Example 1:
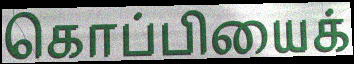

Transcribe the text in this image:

கொப்பியைக்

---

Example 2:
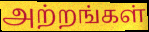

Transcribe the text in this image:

அற்றங்கள்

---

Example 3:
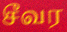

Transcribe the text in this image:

சீவர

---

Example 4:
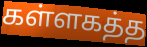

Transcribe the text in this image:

கள்ளகத்த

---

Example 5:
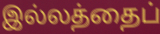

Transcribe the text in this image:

இல்லத்தைப்